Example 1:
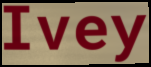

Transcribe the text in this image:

Ivey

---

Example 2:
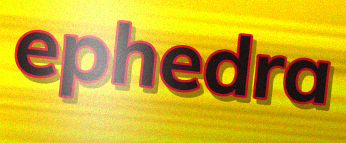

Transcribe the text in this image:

ephedra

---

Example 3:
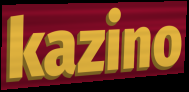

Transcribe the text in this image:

kazino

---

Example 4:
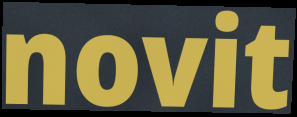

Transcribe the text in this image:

novit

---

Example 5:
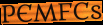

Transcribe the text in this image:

PEMFCs